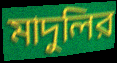
মাদুলির